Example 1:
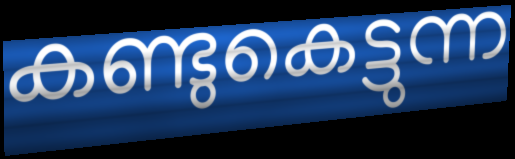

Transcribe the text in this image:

കണ്ടുകെട്ടുന്ന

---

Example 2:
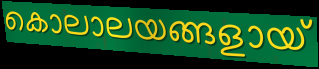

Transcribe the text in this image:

കൊലാലയങ്ങളായ്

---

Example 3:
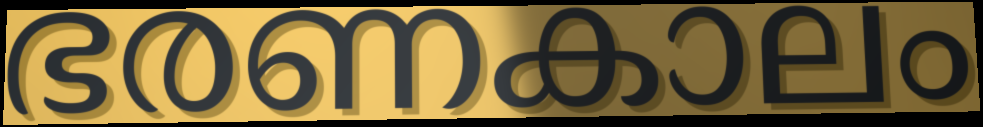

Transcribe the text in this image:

ഭരണകാലം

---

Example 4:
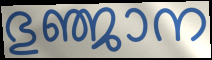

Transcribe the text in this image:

ഭുഞ്ജാന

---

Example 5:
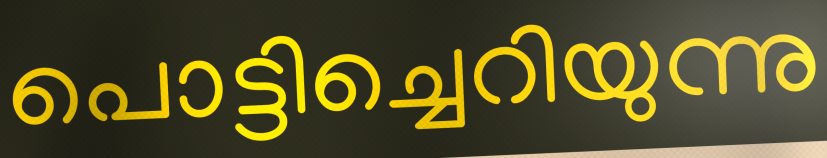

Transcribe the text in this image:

പൊട്ടിച്ചെറിയുന്നു